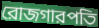
রোজগারপতি